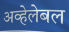
अव्हेलेबल